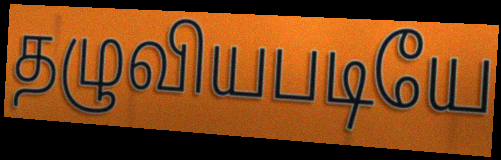
தழுவியபடியே